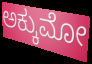
ಅಕ್ಕುಮೋ